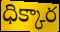
ధిక్కార